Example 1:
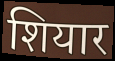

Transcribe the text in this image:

शियार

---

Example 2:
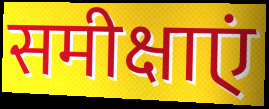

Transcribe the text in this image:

समीक्षाएं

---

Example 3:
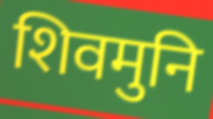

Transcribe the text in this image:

शिवमुनि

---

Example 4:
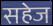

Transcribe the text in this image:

सहेज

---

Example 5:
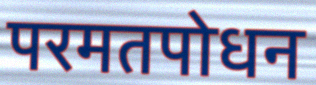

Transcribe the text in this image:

परमतपोधन